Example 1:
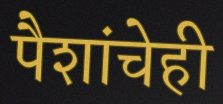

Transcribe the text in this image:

पैशांचेही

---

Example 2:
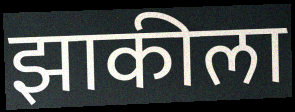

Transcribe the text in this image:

झाकीला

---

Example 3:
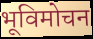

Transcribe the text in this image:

भूविमोचन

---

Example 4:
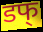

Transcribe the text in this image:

डफ्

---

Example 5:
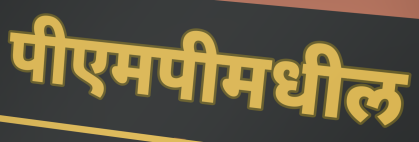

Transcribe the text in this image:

पीएमपीमधील